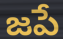
జపే